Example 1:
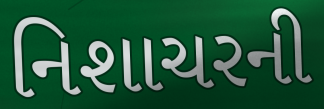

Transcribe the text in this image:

નિશાચરની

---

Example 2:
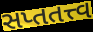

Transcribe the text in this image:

સપ્તતત્ત્વ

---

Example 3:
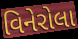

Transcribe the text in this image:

વિનેરોલા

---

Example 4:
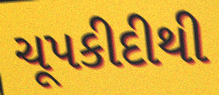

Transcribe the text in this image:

ચૂપકીદીથી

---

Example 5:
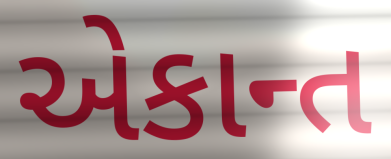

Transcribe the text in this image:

એકાન્ત